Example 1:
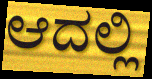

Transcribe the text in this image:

ಆದಲ್ಲಿ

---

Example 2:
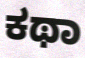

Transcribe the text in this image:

ಕಥಾ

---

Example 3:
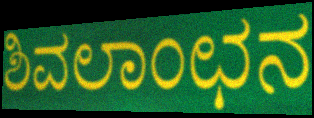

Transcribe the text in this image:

ಶಿವಲಾಂಛನ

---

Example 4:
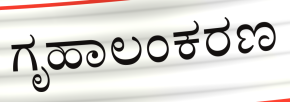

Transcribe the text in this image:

ಗೃಹಾಲಂಕರಣ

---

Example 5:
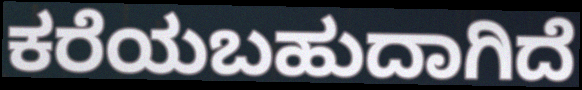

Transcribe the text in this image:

ಕರೆಯಬಹುದಾಗಿದೆ